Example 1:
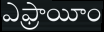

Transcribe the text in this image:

ఎఫ్రాయీం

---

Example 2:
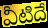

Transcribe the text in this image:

వీటిదే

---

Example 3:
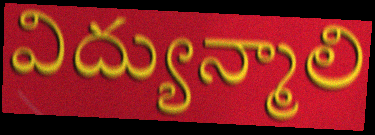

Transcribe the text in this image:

విద్యున్మాలి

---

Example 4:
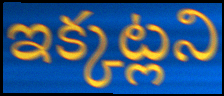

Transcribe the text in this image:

ఇక్కట్లని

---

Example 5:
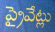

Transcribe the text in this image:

ప్రైవేట్లు